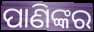
ପାଣିଙ୍କର